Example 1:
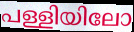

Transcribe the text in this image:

പള്ളിയിലോ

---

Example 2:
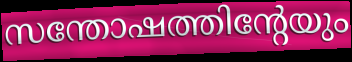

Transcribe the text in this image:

സന്തോഷത്തിന്റേയും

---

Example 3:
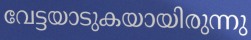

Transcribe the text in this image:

വേട്ടയാടുകയായിരുന്നു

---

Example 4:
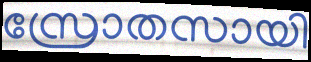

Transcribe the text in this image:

സ്രോതസായി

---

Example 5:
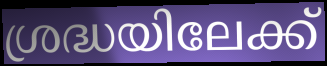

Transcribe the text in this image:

ശ്രദ്ധയിലേക്ക്